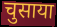
चुसाया